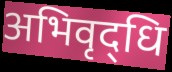
अभिवृद्धि